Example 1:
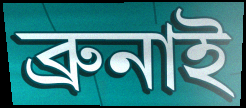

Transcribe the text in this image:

ব্ৰুনাই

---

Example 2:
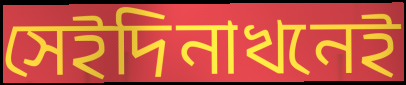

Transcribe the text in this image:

সেইদিনাখনেই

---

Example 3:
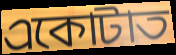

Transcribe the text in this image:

একোটাত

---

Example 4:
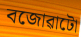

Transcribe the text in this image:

বজোৱাটো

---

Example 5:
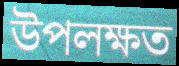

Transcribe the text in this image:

উপলক্ষত